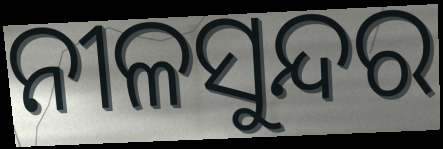
ନୀଳସୁନ୍ଦର